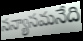
సన్యాసమనేది